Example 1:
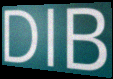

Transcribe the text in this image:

DIB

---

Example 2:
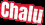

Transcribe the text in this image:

Chalu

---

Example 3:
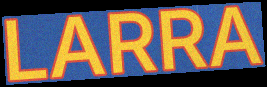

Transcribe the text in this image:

LARRA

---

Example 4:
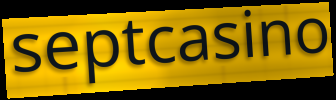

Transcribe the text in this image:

septcasino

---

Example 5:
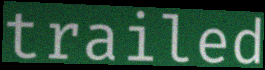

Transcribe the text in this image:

trailed